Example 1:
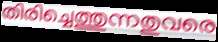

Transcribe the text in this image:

തിരിച്ചെത്തുന്നതുവരെ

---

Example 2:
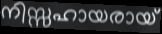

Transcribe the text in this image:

നിസ്സഹായരായ്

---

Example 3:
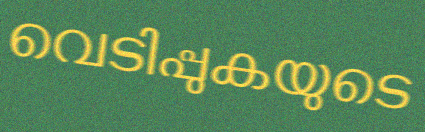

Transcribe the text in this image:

വെടിപ്പുകയുടെ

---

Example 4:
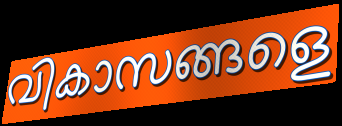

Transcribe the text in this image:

വികാസങ്ങളെ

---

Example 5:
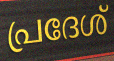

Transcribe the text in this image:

പ്രദേശ്